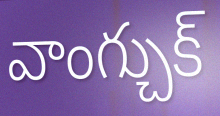
వాంగ్చుక్